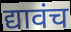
द्यावंच